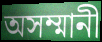
অসম্মানী